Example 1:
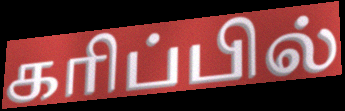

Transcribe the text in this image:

கரிப்பில்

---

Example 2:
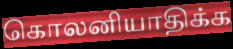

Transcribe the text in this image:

கொலனியாதிக்க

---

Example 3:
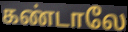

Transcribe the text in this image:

கண்டாலே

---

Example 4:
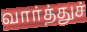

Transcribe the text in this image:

வார்த்துச்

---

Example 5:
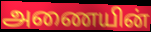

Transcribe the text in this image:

அணையின்